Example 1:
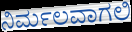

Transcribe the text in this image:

ನಿರ್ಮಲವಾಗಲಿ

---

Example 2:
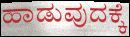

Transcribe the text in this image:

ಹಾಡುವುದಕ್ಕೆ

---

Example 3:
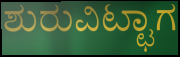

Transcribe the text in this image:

ಶುರುವಿಟ್ಟಾಗ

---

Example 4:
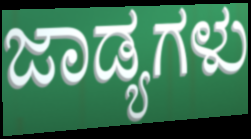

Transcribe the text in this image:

ಜಾಡ್ಯಗಳು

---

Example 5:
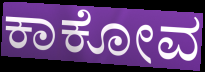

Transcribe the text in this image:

ಕಾಕೋವ